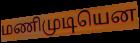
மணிமுடியென